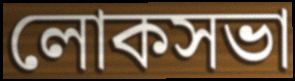
লোকসভা